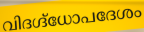
വിദഗ്ദ്ധോപദേശം